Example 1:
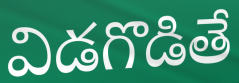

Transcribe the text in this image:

విడగొడితే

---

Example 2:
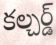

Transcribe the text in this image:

కల్చర్డ్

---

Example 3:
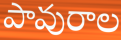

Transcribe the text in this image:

పావురాల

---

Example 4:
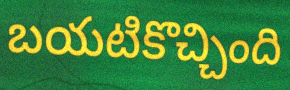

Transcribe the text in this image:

బయటికొచ్చింది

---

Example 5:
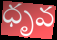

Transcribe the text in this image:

ధృవ